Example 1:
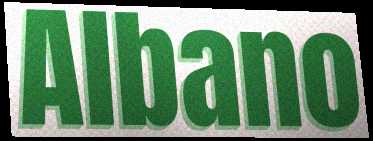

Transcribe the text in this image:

Albano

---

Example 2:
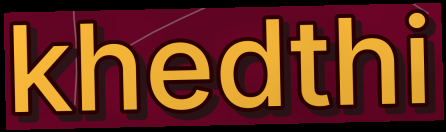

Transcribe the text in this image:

khedthi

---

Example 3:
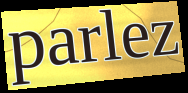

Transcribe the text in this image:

parlez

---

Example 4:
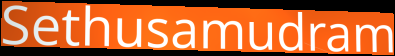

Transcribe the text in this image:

Sethusamudram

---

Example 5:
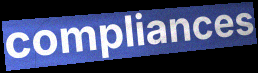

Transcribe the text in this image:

compliances